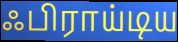
ஃபிராய்டிய